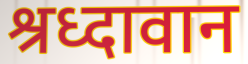
श्रध्दावान